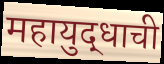
महायुद्धाची